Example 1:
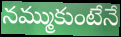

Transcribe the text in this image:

నమ్ముకుంటేనే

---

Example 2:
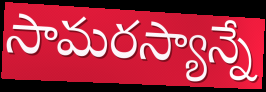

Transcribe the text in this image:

సామరస్యాన్నే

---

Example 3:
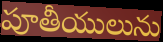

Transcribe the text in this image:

పూతీయులును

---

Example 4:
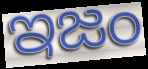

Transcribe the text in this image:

ఇజం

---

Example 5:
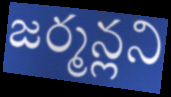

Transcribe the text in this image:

జర్మన్లని